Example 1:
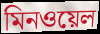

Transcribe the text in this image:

মিনওয়েল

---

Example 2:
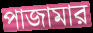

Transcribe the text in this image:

পাজামার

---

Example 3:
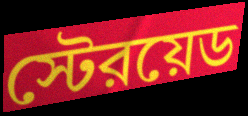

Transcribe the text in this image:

স্টেরয়েড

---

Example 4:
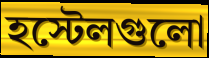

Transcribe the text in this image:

হস্টেলগুলো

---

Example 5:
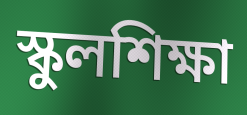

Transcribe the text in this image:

স্কুলশিক্ষা